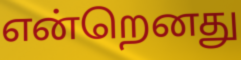
என்றெனது